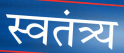
स्वतंत्र्य